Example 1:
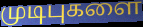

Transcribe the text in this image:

முடிபுகளை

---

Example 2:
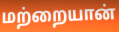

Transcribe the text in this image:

மற்றையான்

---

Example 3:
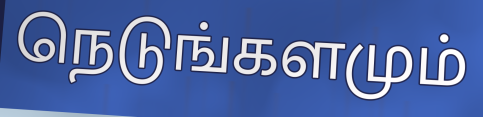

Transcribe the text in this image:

நெடுங்களமும்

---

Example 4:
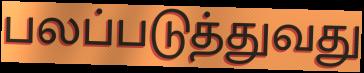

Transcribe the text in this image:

பலப்படுத்துவது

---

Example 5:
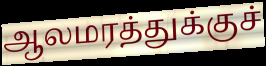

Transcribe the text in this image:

ஆலமரத்துக்குச்